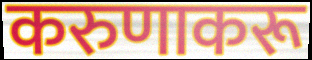
करुणाकरू